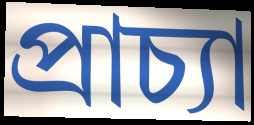
প্ৰাচ্যা